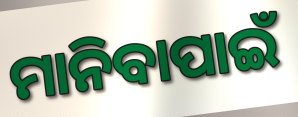
ମାନିବାପାଇଁ